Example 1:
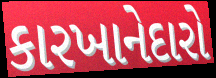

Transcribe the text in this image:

કારખાનેદારો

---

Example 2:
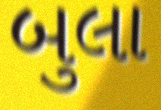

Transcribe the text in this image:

બુલા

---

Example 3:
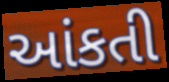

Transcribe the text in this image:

આંકતી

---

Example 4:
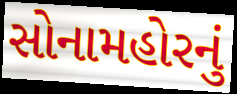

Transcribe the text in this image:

સોનામહોરનું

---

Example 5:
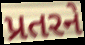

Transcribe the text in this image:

પ્રતરને